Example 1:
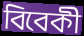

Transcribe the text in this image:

বিবেকী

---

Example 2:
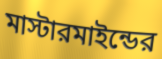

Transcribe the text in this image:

মাস্টারমাইন্ডের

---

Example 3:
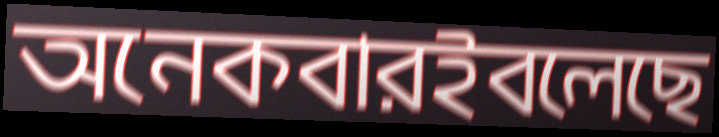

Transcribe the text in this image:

অনেকবারইবলেছে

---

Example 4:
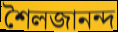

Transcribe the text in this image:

শৈলজানন্দ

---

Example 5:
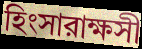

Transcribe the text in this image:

হিংসারাক্ষসী